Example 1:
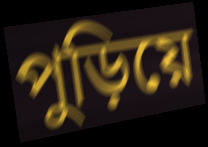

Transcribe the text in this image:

পুড়িয়ে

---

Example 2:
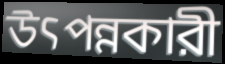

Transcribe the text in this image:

উৎপন্নকারী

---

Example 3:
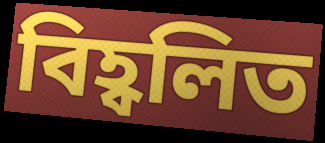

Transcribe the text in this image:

বিহ্বলিত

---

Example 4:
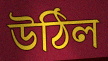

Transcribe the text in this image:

উঠিল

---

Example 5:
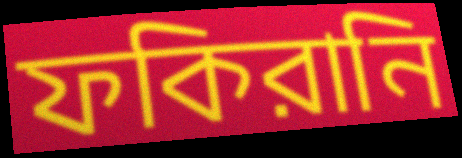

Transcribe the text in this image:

ফকিরানি